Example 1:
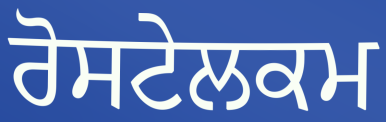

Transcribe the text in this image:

ਰੋਸਟੇਲਕਮ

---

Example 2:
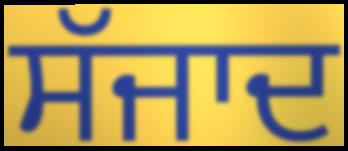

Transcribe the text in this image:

ਸੱਜਾਦ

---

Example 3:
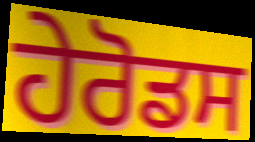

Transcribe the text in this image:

ਹੇਰੋਡਸ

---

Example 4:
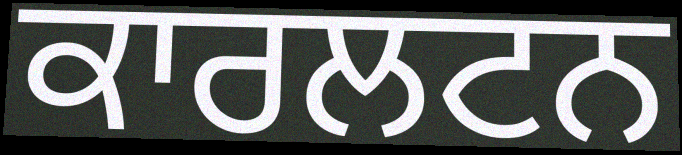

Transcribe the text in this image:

ਕਾਰਲਟਨ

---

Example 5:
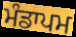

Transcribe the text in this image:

ਮੰਡਾਪਮ